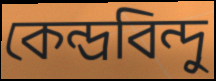
কেন্দ্ৰবিন্দু